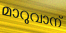
മാറുവാന്